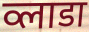
व्लाडा